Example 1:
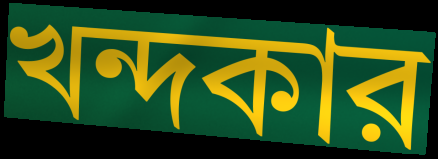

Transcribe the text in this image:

খন্দকার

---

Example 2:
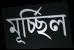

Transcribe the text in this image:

মূর্চ্ছিল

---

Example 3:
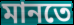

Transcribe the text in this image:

মানতে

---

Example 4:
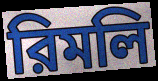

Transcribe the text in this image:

রিমলি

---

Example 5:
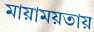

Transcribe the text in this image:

মায়াময়তায়